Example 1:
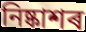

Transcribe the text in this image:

নিষ্কাশৰ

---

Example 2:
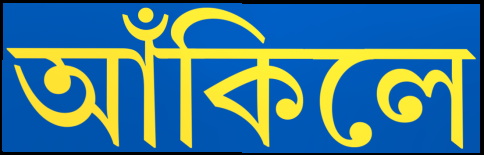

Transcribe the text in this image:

আঁকিলে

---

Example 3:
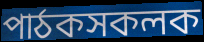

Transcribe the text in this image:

পাঠকসকলক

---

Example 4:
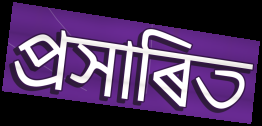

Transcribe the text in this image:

প্ৰসাৰিত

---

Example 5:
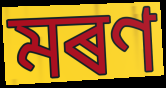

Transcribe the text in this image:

মৰণ